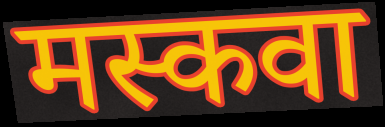
मस्कवा